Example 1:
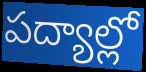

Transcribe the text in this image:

పద్యాల్లో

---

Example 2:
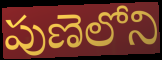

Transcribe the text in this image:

పుణెలోని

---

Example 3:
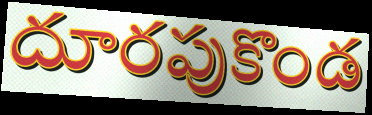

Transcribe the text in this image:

దూరపుకొండ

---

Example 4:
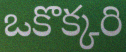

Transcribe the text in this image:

ఒకొక్కరి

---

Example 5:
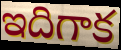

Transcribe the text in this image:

ఇదిగాక